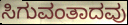
ಸಿಗುವಂತಾದವು